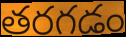
తరగడం